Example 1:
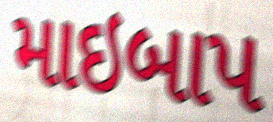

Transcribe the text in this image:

માઇબાપ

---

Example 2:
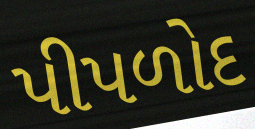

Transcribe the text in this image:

પીપળોદ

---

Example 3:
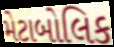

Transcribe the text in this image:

મેટાબોલિક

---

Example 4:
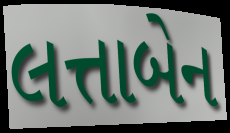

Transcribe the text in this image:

લત્તાબેન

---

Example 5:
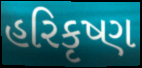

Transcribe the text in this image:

હરિકૃષ્ણ